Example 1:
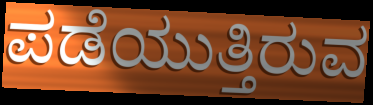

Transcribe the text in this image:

ಪಡೆಯುತ್ತಿರುವ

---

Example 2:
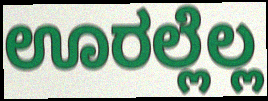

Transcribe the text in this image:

ಊರಲ್ಲೆಲ್ಲ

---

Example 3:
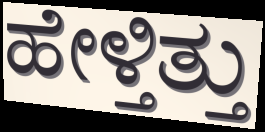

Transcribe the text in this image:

ಹೇಳ್ತಿತ್ತು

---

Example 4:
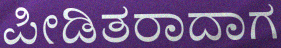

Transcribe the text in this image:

ಪೀಡಿತರಾದಾಗ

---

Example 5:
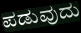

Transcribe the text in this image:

ಪಡುವುದು